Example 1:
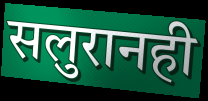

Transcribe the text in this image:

सलुरानही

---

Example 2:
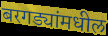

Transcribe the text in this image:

बरगड्यांमधील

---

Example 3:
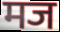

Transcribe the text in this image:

मज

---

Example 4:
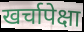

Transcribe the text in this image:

खर्चापेक्षा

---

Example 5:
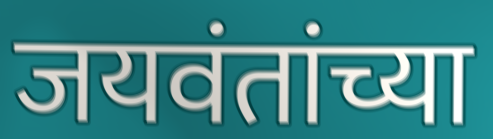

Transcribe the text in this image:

जयवंतांच्या